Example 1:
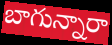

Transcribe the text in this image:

బాగున్నారా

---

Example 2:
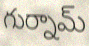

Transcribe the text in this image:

గుర్నామ్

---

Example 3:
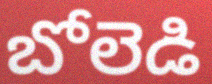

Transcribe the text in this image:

బోలెడి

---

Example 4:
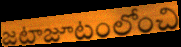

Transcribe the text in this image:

జటాజూటంలోంచి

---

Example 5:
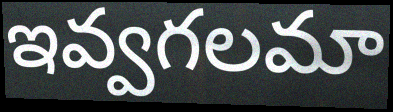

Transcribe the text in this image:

ఇవ్వగలమా